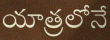
యాత్రలోనే